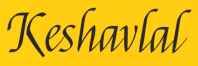
Keshavlal